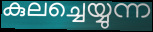
കുലച്ചെയ്യുന്ന